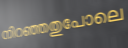
നിറഞ്ഞതുപോലെ